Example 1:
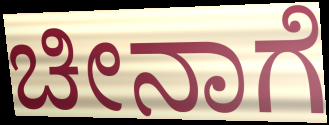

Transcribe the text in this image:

ಚೀನಾಗೆ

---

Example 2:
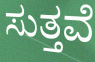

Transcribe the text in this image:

ಸುತ್ತವೆ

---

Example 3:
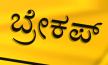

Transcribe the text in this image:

ಬ್ರೇಕಪ್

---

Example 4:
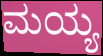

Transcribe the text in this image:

ಮಯ್ಯ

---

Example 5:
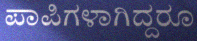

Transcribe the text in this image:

ಪಾಪಿಗಳಾಗಿದ್ದರೂ